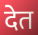
देत